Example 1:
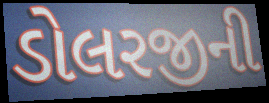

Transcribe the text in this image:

ડોલરજીની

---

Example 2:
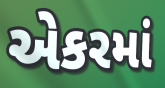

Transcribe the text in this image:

એકરમાં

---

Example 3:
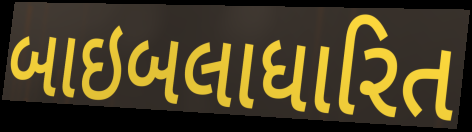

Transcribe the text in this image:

બાઇબલાધારિત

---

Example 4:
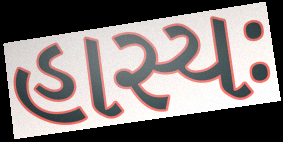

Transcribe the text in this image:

હાસ્યઃ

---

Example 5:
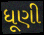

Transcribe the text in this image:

ધૂણી